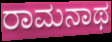
ರಾಮನಾಥ